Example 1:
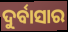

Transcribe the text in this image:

ଦୁର୍ବାସାର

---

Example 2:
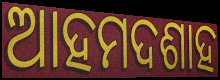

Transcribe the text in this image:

ଆହମଦଶାହ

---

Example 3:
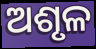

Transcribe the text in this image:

ଅଶୃଳ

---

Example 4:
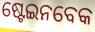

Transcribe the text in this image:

ଷ୍ଟେଇନବେକ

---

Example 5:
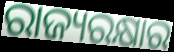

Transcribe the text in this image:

ରାଜ୍ୟରକ୍ଷାର